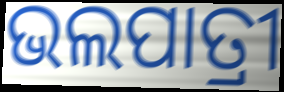
ଭଲପାତ୍ରୀ